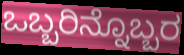
ಒಬ್ಬರಿನ್ನೊಬ್ಬರ